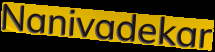
Nanivadekar